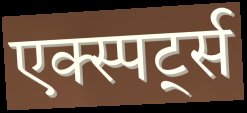
एक्स्पर्ट्स